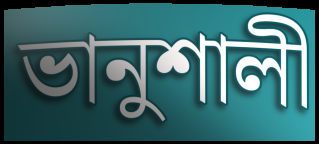
ভানুশালী